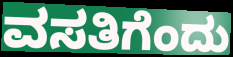
ವಸತಿಗೆಂದು